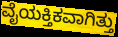
ವೈಯಕ್ತಿಕವಾಗಿತ್ತು